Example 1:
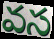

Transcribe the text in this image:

వస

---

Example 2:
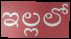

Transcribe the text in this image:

ఇల్లలో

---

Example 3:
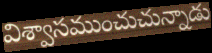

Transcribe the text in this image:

విశ్వాసముంచుచున్నాడు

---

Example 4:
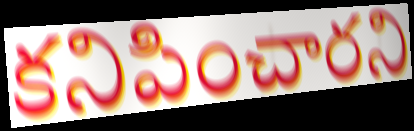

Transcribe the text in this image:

కనిపించారని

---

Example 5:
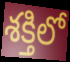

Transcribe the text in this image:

శక్తిలో